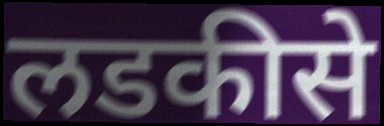
लडकीसे